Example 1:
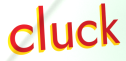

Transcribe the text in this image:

cluck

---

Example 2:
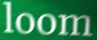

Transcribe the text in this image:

loom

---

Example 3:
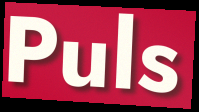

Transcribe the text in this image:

Puls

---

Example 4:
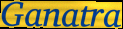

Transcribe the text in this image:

Ganatra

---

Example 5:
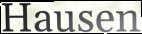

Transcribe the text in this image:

Hausen